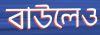
বাউলেও